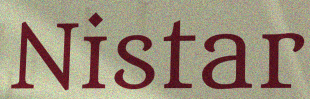
Nistar